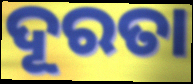
ଦୂରତା